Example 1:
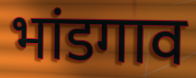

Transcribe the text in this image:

भांडगाव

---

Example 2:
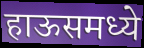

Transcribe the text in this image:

हाऊसमध्ये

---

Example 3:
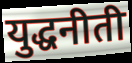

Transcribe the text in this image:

युद्धनीती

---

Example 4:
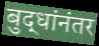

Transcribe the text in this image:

बुद्धांनंतर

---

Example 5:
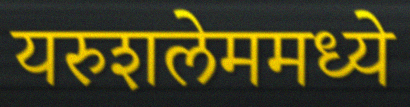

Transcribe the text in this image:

यरुशलेममध्ये